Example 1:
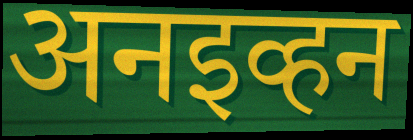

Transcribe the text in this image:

अनइव्हन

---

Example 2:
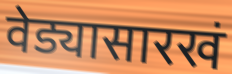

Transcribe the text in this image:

वेड्यासारखं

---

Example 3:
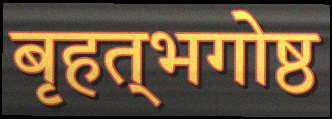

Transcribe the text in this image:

बृहत्‌भगोष्ठ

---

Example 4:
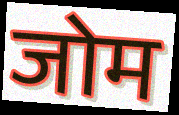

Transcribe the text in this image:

जोम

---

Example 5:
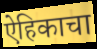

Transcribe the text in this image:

ऐहिकाचा